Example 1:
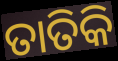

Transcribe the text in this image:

ତାତିକି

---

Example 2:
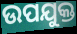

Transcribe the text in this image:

ଉପଯୁକ୍ତ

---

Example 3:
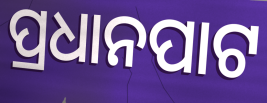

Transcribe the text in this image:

ପ୍ରଧାନପାଟ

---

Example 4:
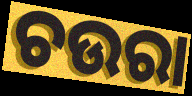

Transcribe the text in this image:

ଚଉରା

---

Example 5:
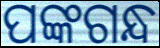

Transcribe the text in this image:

ପଙ୍କଗନ୍ଧ